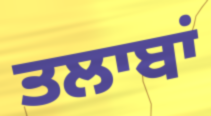
ਤਲਾਬਾਂ